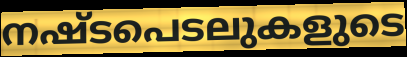
നഷ്ടപെടലുകളുടെ